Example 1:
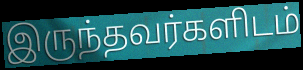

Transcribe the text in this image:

இருந்தவர்களிடம்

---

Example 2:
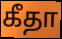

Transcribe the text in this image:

கீதா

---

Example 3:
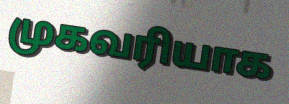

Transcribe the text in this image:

முகவரியாக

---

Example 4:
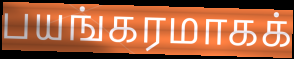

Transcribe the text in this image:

பயங்கரமாகக்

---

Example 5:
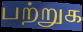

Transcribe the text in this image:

பற்றுக